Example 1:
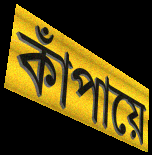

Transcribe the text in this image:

কাঁপায়ে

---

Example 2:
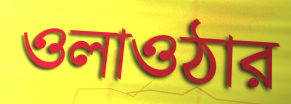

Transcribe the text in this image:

ওলাওঠার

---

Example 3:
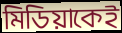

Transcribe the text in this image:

মিডিয়াকেই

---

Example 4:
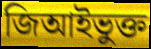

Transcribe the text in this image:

জিআইভুক্ত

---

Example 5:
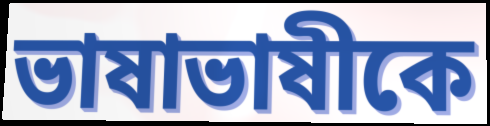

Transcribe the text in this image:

ভাষাভাষীকে